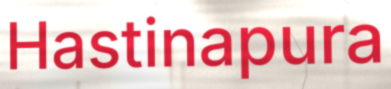
Hastinapura